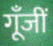
गूँजीं